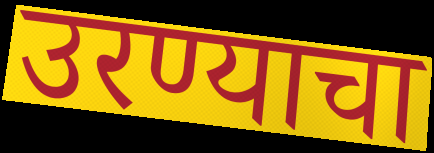
उरण्याचा